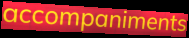
accompaniments